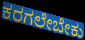
ಕರಗಲೇಬೇಕು